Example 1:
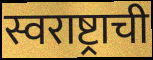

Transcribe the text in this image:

स्वराष्ट्राची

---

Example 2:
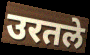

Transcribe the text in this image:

उरतले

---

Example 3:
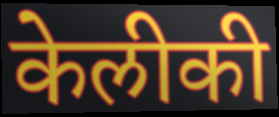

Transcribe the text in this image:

केलीकी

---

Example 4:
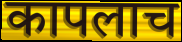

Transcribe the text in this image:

कापलाच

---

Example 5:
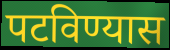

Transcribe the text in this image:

पटविण्यास